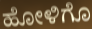
ಹೋಳಿಗೊ